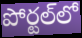
పోర్టల్‌లో